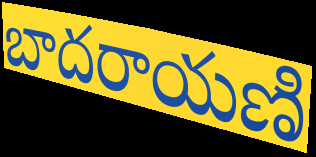
బాదరాయణి